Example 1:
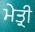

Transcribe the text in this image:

ਮੇਤ੍ਰੀ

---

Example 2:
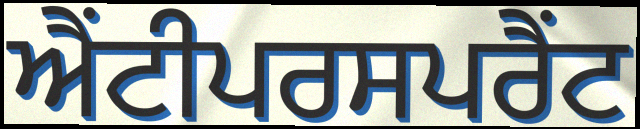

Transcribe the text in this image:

ਐਂਟੀਪਰਸਪਰੈਂਟ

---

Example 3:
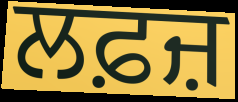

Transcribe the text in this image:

ਲਫ਼ਜ਼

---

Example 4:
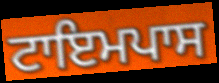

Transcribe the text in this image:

ਟਾਇਮਪਾਸ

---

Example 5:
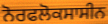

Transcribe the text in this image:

ਨੋਰਫਲੋਕਸਾਸੀਨ